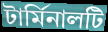
টার্মিনালটি